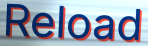
Reload